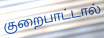
குறைபாட்டால்